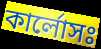
কার্লোসঃ